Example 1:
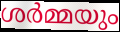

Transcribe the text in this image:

ശർമ്മയും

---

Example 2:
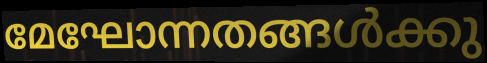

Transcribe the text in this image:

മേഘോന്നതങ്ങൾക്കു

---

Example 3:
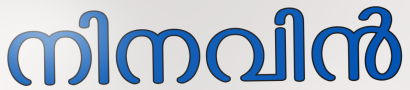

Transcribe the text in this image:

നിനവിൻ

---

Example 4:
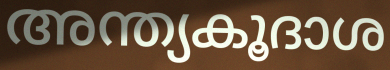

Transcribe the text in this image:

അന്ത്യകൂദാശ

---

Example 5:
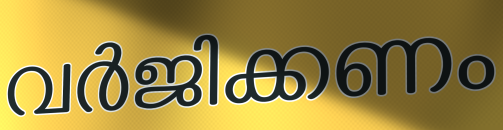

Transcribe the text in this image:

വർജിക്കണം